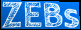
ZEBs